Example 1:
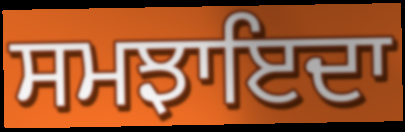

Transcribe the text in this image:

ਸਮਝਾਇਦਾ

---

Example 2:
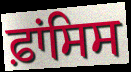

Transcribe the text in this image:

ਫ਼ਾਂਸਿਸ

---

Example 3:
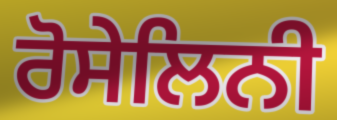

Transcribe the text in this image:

ਰੋਸੇਲਿਨੀ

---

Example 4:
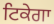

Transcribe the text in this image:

ਟਿਕੇਗਾ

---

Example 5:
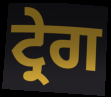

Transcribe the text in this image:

ਟ੍ਰੇਗ